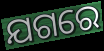
ଯଗରେ